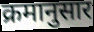
क्रमानुसार